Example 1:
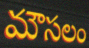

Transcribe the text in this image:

మౌసలం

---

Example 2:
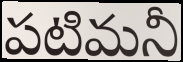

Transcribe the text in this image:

పటిమనీ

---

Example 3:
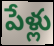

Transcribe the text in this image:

పేళ్లు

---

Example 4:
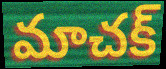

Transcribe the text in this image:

మాచక్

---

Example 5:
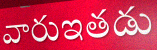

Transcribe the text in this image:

వారుఇతడు